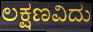
ಲಕ್ಷಣವಿದು